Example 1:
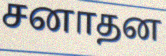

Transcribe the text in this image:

சனாதன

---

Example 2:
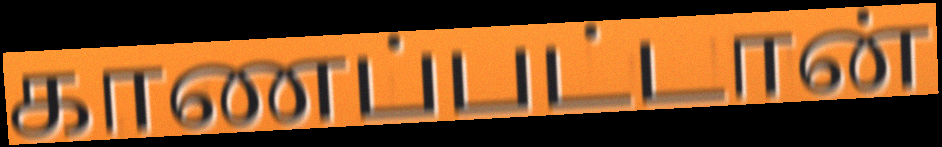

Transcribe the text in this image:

காணப்பட்டான்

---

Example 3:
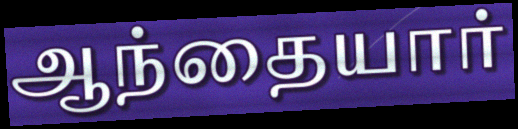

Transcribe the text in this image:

ஆந்தையார்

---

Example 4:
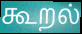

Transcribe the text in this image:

கூறல்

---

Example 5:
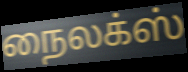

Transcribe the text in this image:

நைலக்ஸ்